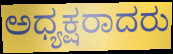
ಅಧ್ಯಕ್ಷರಾದರು